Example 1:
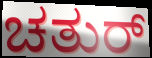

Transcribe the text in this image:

ಚತುರ್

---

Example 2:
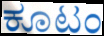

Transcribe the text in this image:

ಕೂಟಂ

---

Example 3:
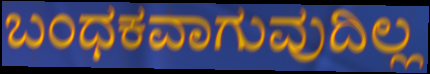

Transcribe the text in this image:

ಬಂಧಕವಾಗುವುದಿಲ್ಲ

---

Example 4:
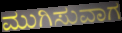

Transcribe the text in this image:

ಮುಗಿಸುವಾಗ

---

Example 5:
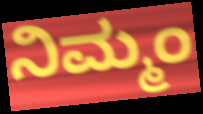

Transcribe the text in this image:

ನಿಮ್ಮಂ